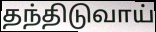
தந்திடுவாய்